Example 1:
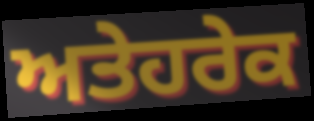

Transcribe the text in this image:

ਅਤੇਹਰੇਕ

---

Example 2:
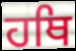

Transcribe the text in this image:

ਹਥਿ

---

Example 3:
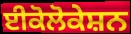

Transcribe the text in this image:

ਈਕੋਲੋਕੇਸ਼ਨ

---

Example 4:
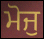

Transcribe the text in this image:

ਮੋਜੁ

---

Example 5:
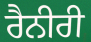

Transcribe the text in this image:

ਰੈਨੀਰੀ